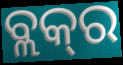
ବ୍ଲକ୍‍ର